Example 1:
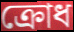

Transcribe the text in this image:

ক্ৰোধ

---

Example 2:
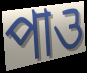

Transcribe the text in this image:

পাও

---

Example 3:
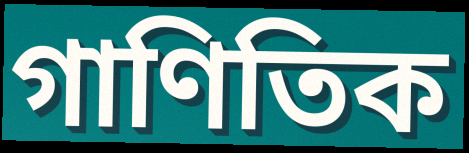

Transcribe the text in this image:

গাণিতিক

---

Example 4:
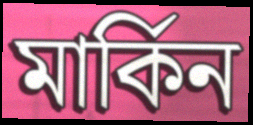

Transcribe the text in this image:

মাৰ্কিন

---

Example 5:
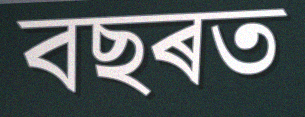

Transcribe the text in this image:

বছৰত